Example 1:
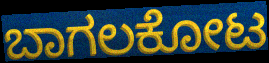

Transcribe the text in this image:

ಬಾಗಲಕೋಟ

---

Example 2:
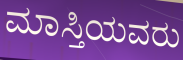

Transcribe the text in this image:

ಮಾಸ್ತಿಯವರು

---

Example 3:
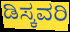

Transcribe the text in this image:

ಡಿಸ್ಕವರಿ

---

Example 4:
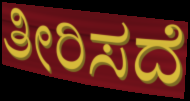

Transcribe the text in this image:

ತೀರಿಸದೆ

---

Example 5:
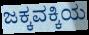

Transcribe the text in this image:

ಜಕ್ಕವಕ್ಕಿಯ